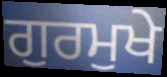
ਗੁਰਮੁਖੇ